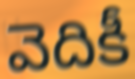
వెదికీ